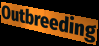
Outbreeding